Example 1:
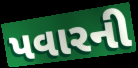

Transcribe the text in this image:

પવારની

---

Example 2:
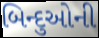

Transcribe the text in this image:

બિન્દુઓની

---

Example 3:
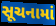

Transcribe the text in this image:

સૂચનામાં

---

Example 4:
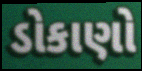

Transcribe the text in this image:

ડોકાણો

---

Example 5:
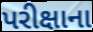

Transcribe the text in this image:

પરીક્ષાના